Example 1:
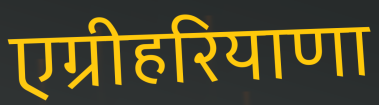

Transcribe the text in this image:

एग्रीहरियाणा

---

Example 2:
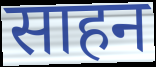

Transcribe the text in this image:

साहन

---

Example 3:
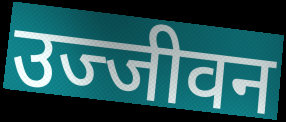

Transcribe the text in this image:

उज्जीवन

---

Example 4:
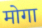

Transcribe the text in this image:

मोगा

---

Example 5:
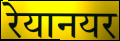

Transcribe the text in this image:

रेयानयर